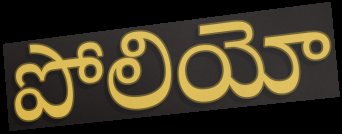
పోలియో